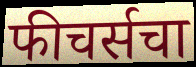
फीचर्सचा